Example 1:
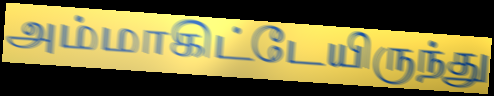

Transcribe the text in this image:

அம்மாகிட்டேயிருந்து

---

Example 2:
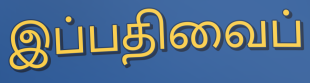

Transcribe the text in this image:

இப்பதிவைப்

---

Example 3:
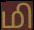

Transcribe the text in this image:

மி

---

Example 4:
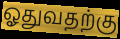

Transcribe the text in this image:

ஓதுவதற்கு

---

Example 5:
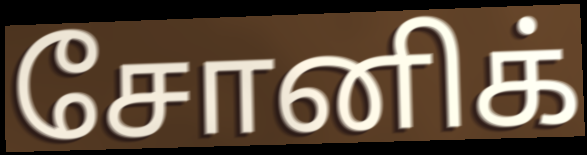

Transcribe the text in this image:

சோனிக்